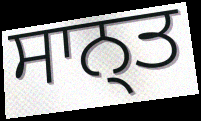
ਸਾਨ੍ਤ